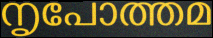
നൃപോത്തമ